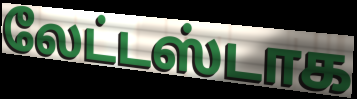
லேட்டஸ்டாக